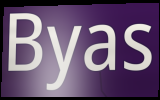
Byas